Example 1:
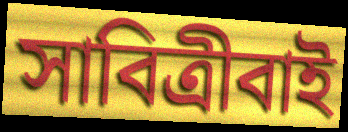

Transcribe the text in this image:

সাবিত্ৰীবাই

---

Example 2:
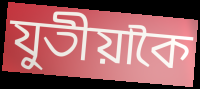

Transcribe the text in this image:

যুতীয়াকৈ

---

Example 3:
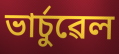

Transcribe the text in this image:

ভাৰ্চুৱেল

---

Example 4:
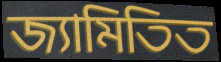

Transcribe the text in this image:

জ্যামিতিত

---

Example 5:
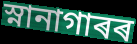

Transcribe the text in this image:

স্নানাগাৰৰ